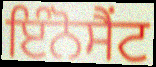
ਇੰਨੋਸੈਂਟ